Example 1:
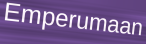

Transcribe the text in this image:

Emperumaan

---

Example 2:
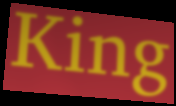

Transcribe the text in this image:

King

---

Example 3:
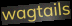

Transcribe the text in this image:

wagtails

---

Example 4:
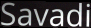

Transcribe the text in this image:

Savadi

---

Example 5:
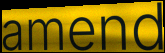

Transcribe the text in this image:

amend